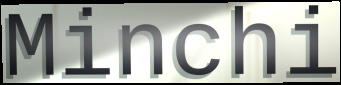
Minchi